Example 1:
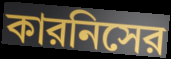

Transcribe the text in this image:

কারনিসের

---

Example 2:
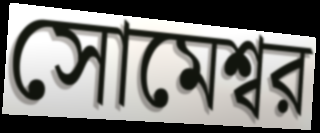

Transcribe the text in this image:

সোমেশ্বর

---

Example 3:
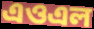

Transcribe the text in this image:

এওএল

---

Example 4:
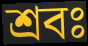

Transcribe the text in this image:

শ্রবঃ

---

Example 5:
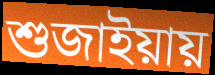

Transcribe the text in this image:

শুজাইয়ায়